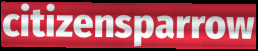
citizensparrow